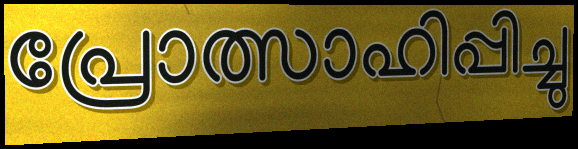
പ്രോത്സാഹിപ്പിച്ചു